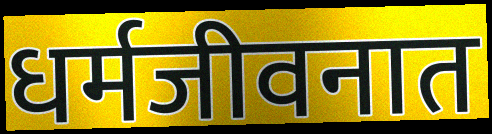
धर्मजीवनात